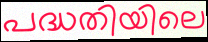
പദ്ധതിയിലെ